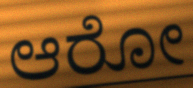
ಆರೋ